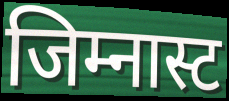
जिम्नास्ट